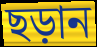
ছড়ান